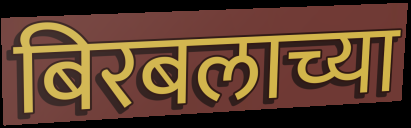
बिरबलाच्या